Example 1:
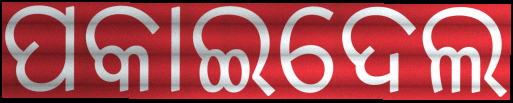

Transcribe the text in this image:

ପକାଇଦେଲ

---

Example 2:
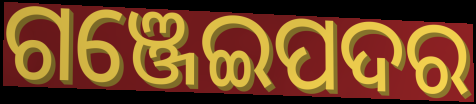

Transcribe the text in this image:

ଗଞ୍ଜେଇପଦର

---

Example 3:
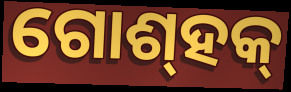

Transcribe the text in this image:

ଗୋଶ୍‍ହକ୍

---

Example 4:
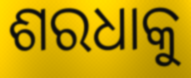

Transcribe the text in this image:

ଶରଧାକୁ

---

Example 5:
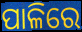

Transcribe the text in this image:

ପାଳିରେ